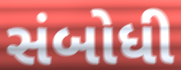
સંબોધી